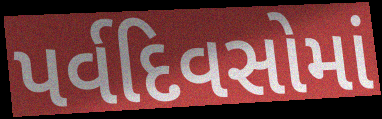
પર્વદિવસોમાં